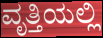
ವೃತ್ತಿಯಲ್ಲಿ